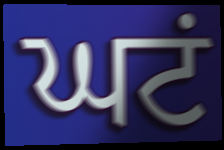
ਘਟਂ